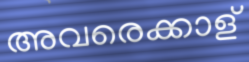
അവരെക്കാള്